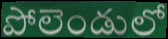
పోలెండులో